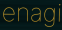
enagi